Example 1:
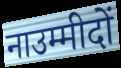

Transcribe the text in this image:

नाउम्मीदों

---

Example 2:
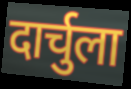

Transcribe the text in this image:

दार्चुला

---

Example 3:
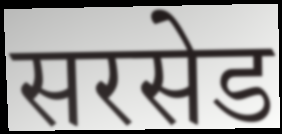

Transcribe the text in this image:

सरसेड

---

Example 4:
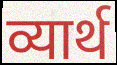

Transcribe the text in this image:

व्यार्थ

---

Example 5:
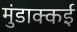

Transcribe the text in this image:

मुंडाक्कई